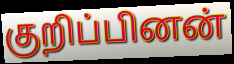
குறிப்பினன்